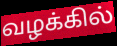
வழக்கில்